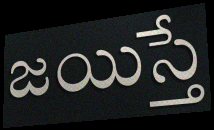
జయిస్తే